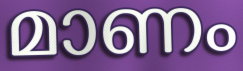
മാണം